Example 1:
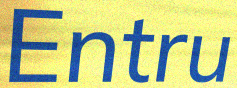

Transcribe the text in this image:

Entru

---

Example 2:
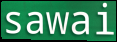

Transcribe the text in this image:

sawai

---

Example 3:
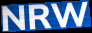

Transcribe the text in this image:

NRW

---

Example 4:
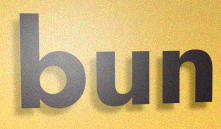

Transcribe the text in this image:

bun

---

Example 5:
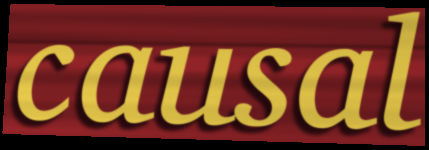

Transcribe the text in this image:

causal